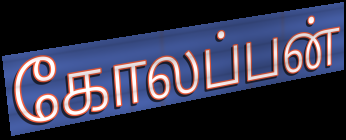
கோலப்பன்